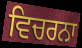
ਵਿਚਰਨਾ